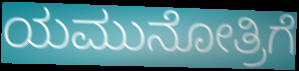
ಯಮುನೋತ್ರಿಗೆ